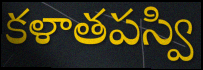
కళాతపస్వి